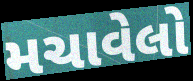
મચાવેલો